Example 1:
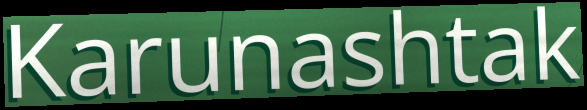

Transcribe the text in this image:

Karunashtak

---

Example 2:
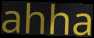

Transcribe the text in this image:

ahha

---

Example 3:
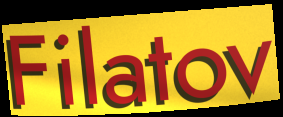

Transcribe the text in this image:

Filatov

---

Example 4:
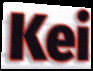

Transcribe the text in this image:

Kei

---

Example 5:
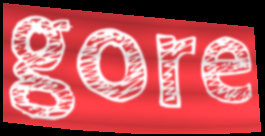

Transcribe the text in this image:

gore